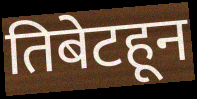
तिबेटहून